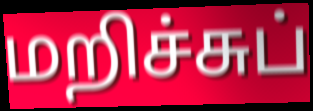
மறிச்சுப்